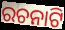
ରଚନାଟି